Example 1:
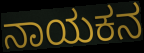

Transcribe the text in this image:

ನಾಯಕನ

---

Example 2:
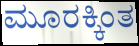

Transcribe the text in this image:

ಮೂರಕ್ಕಿಂತ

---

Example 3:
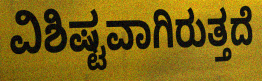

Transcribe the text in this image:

ವಿಶಿಷ್ಟವಾಗಿರುತ್ತದೆ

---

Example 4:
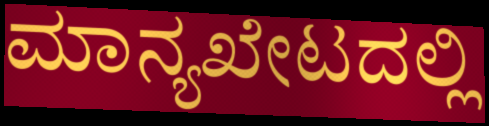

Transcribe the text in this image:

ಮಾನ್ಯಖೇಟದಲ್ಲಿ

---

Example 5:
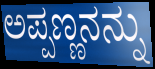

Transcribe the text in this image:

ಅಪ್ಪಣ್ಣನನ್ನು